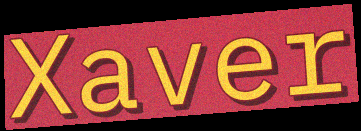
Xaver